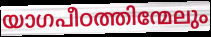
യാഗപീഠത്തിന്മേലും